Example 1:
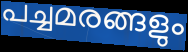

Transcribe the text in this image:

പച്ചമരങ്ങളും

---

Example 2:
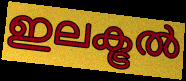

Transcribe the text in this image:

ഇലക്ട്രൽ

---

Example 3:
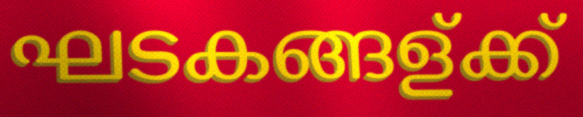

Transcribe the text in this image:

ഘടകങ്ങള്ക്ക്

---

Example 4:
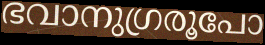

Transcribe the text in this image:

ഭവാനുഗ്രരൂപോ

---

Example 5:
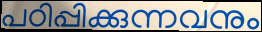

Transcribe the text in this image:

പഠിപ്പിക്കുന്നവനും